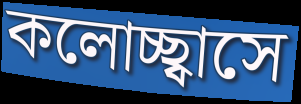
কলোচ্ছ্বাসে